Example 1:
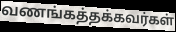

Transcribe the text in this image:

வணங்கத்தக்கவர்கள்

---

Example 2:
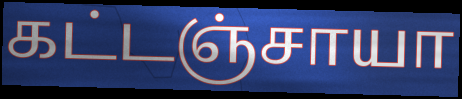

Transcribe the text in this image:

கட்டஞ்சாயா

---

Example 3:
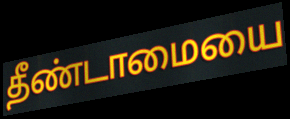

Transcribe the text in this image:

தீண்டாமையை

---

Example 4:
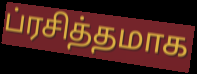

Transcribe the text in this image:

ப்ரசித்தமாக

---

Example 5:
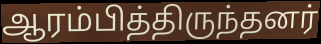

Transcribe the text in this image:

ஆரம்பித்திருந்தனர்